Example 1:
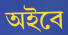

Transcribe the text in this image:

অইবে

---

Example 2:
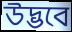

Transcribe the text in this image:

উদ্ভবে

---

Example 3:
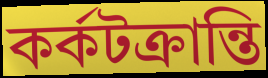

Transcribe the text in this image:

কর্কটক্রান্তি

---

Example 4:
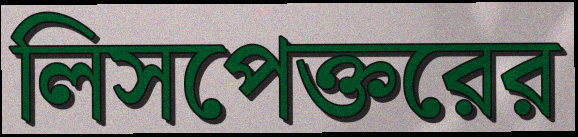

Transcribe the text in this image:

লিসপেক্তরের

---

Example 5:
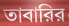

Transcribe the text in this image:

তাবারির